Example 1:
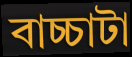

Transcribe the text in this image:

বাচ্চাটা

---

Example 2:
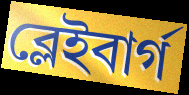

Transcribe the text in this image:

ব্লেইবার্গ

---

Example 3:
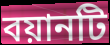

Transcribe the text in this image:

বয়ানটি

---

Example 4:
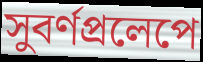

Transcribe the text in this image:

সুবর্ণপ্রলেপে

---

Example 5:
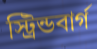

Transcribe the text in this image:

স্ট্রিন্ডবার্গ